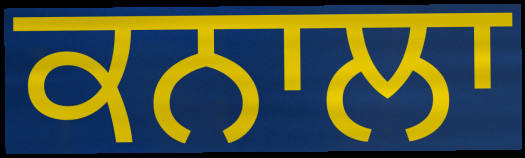
ਕਨਾਲਾ